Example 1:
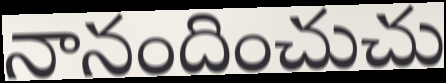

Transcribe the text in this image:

నానందించుచు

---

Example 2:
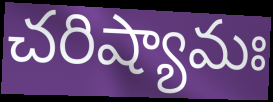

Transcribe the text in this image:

చరిష్యామః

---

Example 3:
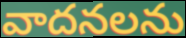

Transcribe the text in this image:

వాదనలను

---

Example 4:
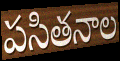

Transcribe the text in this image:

పసితనాల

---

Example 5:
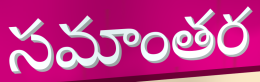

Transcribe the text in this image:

సమాంతర